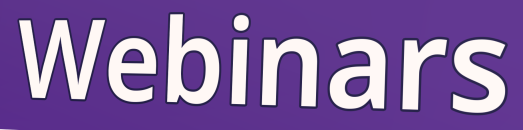
Webinars